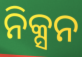
ନିକ୍ସନ